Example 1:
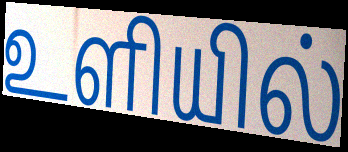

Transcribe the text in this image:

உளியில்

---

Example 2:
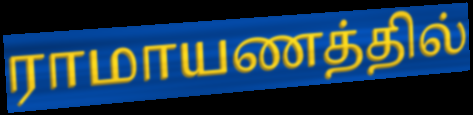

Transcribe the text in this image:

ராமாயணத்தில்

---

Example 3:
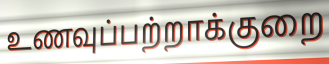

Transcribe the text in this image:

உணவுப்பற்றாக்குறை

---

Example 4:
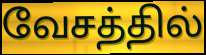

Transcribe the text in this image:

வேசத்தில்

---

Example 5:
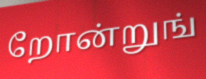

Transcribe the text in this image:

றோன்றுங்